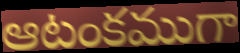
ఆటంకముగా